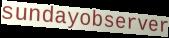
sundayobserver